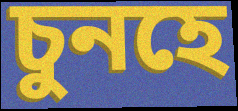
চুনহে